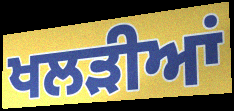
ਖਲੜੀਆਂ